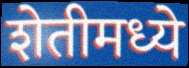
शेतीमध्ये